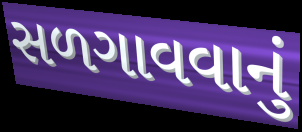
સળગાવવાનું